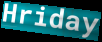
Hriday